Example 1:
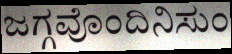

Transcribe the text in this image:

ಜಗ್ಗವೊಂದಿನಿಸುಂ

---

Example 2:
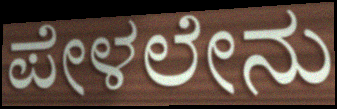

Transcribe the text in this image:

ಪೇಳಲೇನು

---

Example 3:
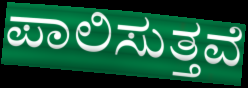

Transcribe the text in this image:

ಪಾಲಿಸುತ್ತವೆ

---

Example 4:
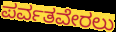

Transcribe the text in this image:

ಪರ್ವತವೇರಲು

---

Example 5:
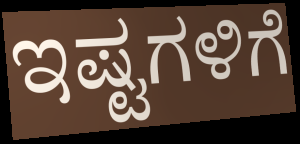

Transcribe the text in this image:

ಇಷ್ಟಗಳಿಗೆ